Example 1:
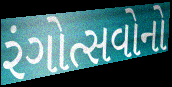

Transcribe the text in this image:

રંગોત્સવોનો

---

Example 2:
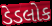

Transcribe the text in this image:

ડેડલોક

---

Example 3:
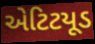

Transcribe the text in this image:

એટિટયૂડ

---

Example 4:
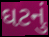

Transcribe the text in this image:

ઘટનું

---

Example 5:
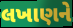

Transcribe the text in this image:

લખાણને